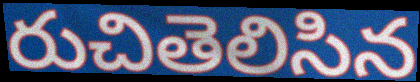
రుచితెలిసిన